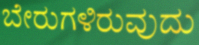
ಬೇರುಗಳಿರುವುದು